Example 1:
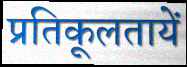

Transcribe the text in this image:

प्रतिकूलतायें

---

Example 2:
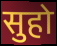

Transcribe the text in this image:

सुहो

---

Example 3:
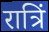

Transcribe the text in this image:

रात्रिं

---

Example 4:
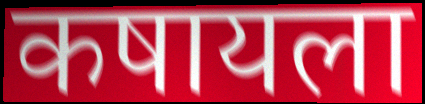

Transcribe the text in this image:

कषायला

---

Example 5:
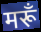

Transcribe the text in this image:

मरूँ